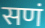
सणं